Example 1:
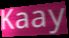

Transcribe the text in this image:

Kaay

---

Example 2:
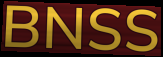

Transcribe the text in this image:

BNSS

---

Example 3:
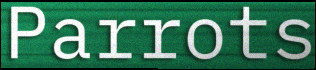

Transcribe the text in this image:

Parrots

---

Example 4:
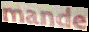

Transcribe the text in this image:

mande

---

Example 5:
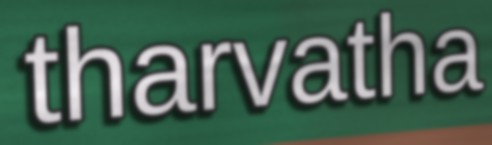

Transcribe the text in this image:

tharvatha